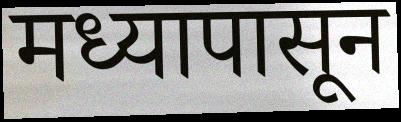
मध्यापासून